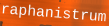
raphanistrum